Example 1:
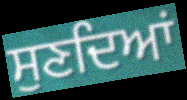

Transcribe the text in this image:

ਸੁਣਦਿਆਂ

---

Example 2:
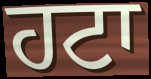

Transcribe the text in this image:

ਹਟਾ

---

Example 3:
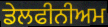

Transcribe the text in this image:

ਡੇਲਫੀਨੀਅਮ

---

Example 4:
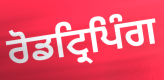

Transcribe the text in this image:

ਰੋਡਟ੍ਰਿਪਿੰਗ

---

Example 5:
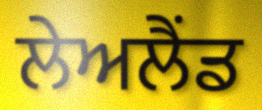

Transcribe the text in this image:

ਲੇਅਲੈਂਡ